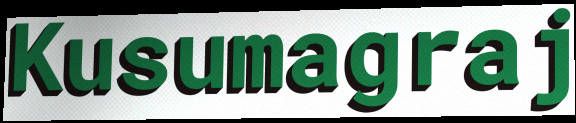
Kusumagraj